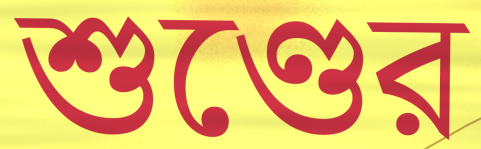
শুণ্ডের